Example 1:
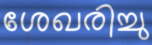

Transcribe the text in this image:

ശേഖരിച്ചു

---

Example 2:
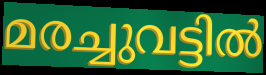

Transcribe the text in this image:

മരച്ചുവട്ടിൽ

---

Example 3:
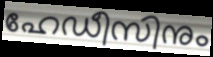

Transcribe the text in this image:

ഹേഡീസിനും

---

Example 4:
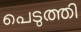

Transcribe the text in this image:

പെടുത്തി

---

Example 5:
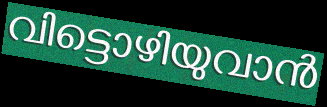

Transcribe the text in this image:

വിട്ടൊഴിയുവാൻ